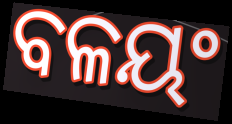
ବଳୟଂ